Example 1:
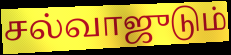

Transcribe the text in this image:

சல்வாஜுடும்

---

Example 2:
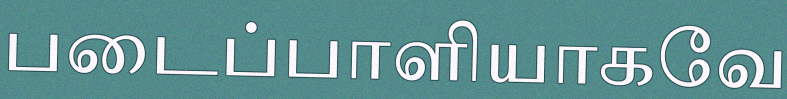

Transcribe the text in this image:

படைப்பாளியாகவே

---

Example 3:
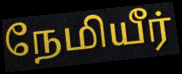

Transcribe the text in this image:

நேமியீர்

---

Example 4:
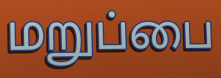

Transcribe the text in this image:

மறுப்பை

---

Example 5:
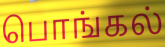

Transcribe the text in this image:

பொங்கல்